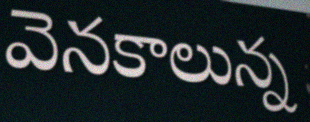
వెనకాలున్న